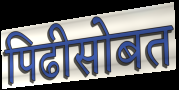
पिढीसोबत